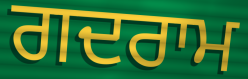
ਗਦਰਾਮ